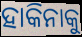
ହାକିନାକୁ